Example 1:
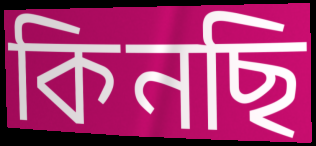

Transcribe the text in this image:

কিনছি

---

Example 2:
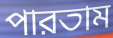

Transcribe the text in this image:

পারতাম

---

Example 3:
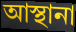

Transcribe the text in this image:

আস্থানা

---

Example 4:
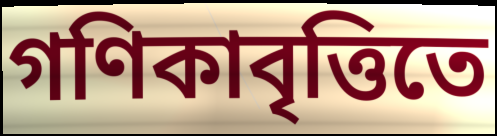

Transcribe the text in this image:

গণিকাবৃত্তিতে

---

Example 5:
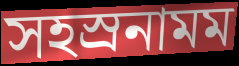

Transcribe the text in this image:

সহস্রনামম